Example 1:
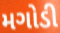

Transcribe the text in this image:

મગોડી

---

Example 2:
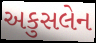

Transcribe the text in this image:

અકુસલેન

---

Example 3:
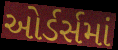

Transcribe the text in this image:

ઓર્ડર્સમાં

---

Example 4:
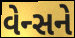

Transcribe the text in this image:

વેન્સને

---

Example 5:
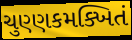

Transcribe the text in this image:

ચુણ્ણકમક્ખિતં